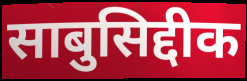
साबुसिद्दीक